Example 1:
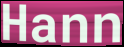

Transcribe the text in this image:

Hann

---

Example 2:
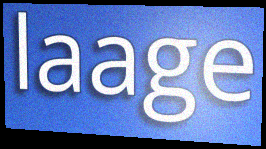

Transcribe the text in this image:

laage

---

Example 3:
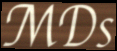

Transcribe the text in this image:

MDs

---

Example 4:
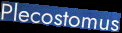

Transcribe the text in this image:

Plecostomus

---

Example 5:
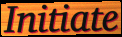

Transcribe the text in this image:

Initiate